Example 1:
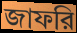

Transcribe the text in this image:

জাফরি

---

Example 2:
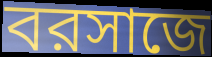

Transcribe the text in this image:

বরসাজে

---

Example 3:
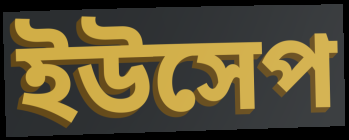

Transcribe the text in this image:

ইউসেপ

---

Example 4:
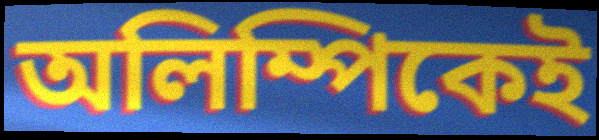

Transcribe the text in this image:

অলিম্পিকেই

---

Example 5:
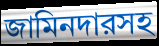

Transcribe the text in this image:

জামিনদারসহ